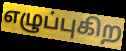
எழுப்புகிற